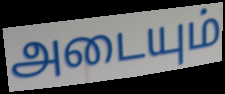
அடையும்